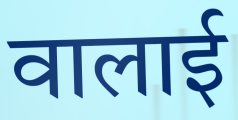
वालाई